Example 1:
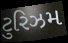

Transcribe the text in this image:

ટુરિઝમ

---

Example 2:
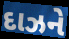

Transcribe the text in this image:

દાઝને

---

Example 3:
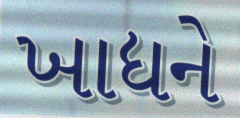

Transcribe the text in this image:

ખાદ્યને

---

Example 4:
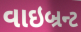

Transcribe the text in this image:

વાઇબ્રન્ટ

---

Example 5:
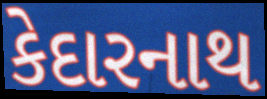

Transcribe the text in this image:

કેદારનાથ